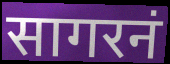
सागरनं